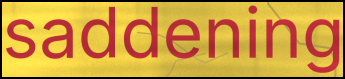
saddening